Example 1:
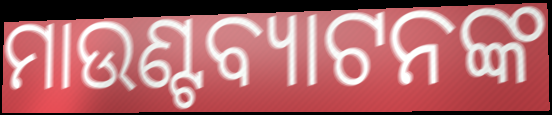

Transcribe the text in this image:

ମାଉଣ୍ଟବ୍ୟାଟନଙ୍କ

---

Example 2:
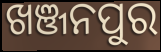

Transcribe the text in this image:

ଖଞ୍ଜନପୁର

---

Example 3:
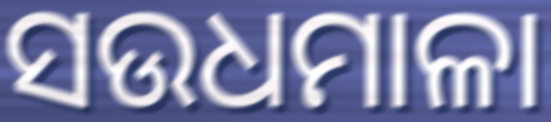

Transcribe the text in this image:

ସଉଧମାଳା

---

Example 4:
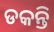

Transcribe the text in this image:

ଡକନ୍ତି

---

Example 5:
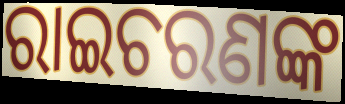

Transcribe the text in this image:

ରାଇଚରଣଙ୍କ